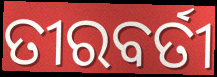
ତୀରବର୍ତୀ